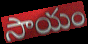
సాయం